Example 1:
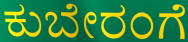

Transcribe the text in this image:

ಕುಬೇರಂಗೆ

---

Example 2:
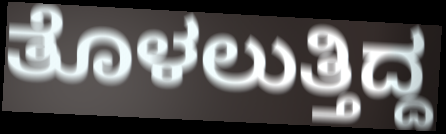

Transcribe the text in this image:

ತೊಳಲುತ್ತಿದ್ದ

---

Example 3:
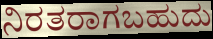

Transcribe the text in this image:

ನಿರತರಾಗಬಹುದು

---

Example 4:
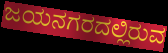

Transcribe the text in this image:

ಜಯನಗರದಲ್ಲಿರುವ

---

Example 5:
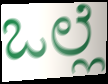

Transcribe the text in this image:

ಒಲ್ಲೆ